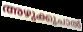
അഴുക്കുചാൽ